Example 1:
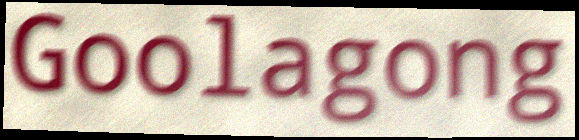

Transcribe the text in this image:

Goolagong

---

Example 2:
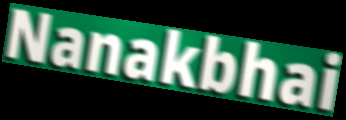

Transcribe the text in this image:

Nanakbhai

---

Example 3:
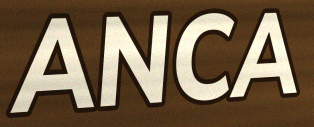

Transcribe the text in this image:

ANCA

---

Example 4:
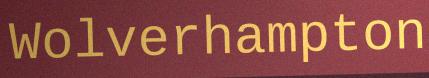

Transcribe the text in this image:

Wolverhampton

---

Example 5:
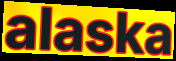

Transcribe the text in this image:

alaska